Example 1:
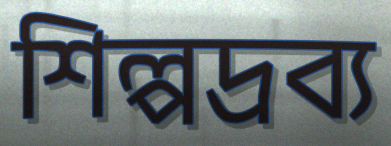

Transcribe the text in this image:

শিল্পদ্রব্য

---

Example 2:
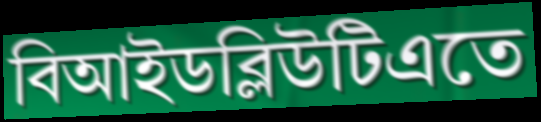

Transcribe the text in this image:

বিআইডব্লিউটিএতে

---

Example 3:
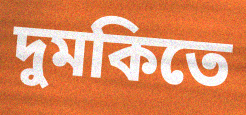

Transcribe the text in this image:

দুমকিতে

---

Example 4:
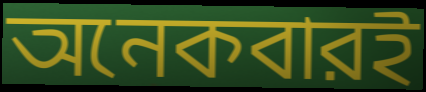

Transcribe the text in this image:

অনেকবারই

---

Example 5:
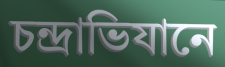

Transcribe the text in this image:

চন্দ্রাভিযানে